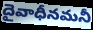
దైవాధీనమనీ